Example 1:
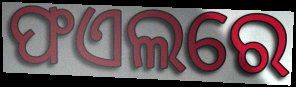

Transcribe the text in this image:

ଫଏଲରେ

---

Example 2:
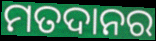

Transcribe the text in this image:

ମତଦାନର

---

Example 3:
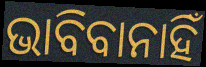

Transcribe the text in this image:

ଭାବିବାନାହିଁ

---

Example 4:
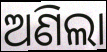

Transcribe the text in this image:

ଅଣିଲା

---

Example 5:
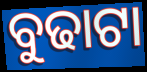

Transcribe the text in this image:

ବୁଢାଟା